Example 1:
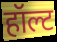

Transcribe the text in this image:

हॉल्‍ट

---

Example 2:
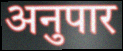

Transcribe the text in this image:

अनुपार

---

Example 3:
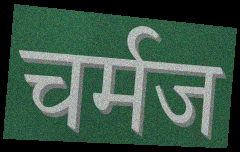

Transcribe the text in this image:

चर्मज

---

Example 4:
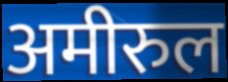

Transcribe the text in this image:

अमीरुल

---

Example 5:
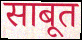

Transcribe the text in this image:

साबूत